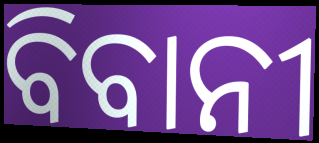
ବିବାନୀ